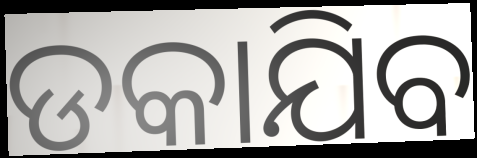
ଡକାଯିବ